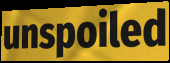
unspoiled